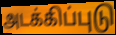
அடக்கிப்புடு